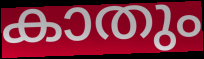
കാതും